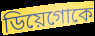
ডিয়েগোকে